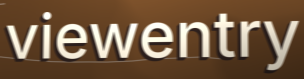
viewentry